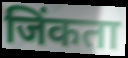
जिंकता